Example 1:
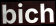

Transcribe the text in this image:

bich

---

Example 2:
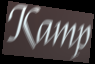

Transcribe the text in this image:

Kamp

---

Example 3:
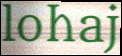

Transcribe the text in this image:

lohaj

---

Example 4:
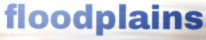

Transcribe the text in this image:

floodplains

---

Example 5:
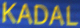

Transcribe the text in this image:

KADAL